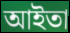
আইতা